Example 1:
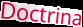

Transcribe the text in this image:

Doctrina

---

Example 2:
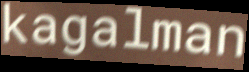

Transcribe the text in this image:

kagalman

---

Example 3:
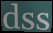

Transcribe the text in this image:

dss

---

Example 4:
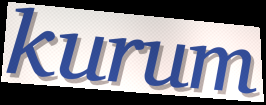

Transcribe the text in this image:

kurum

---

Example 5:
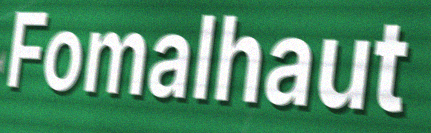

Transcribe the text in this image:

Fomalhaut